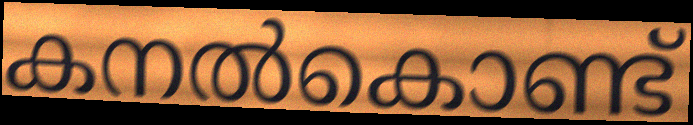
കനൽകൊണ്ട്